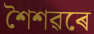
শৈশৱৰে